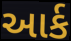
આર્ક